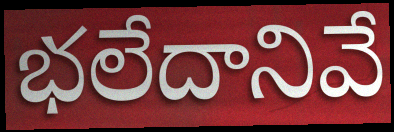
భలేదానివే